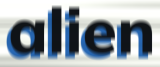
alien